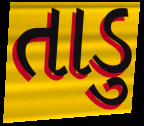
તાડુ